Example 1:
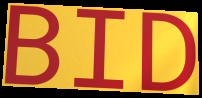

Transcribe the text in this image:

BID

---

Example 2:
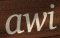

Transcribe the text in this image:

awi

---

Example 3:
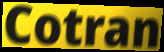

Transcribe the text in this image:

Cotran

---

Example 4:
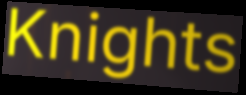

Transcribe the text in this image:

Knights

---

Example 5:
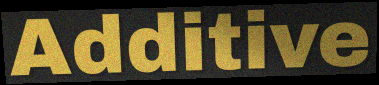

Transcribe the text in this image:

Additive